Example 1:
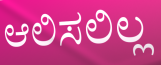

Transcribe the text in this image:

ಆಲಿಸಲಿಲ್ಲ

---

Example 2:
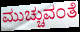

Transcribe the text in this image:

ಮುಚ್ಚುವಂತೆ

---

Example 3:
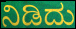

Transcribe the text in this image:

ನಿಡಿದು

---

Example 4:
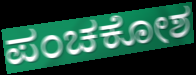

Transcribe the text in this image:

ಪಂಚಕೋಶ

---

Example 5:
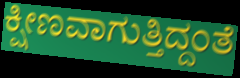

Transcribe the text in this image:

ಕ್ಷೀಣವಾಗುತ್ತಿದ್ದಂತೆ